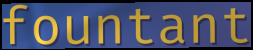
fountant